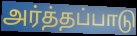
அர்த்தப்பாடு